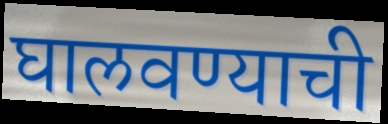
घालवण्याची